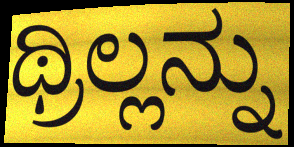
ಥ್ರಿಲ್ಲನ್ನು